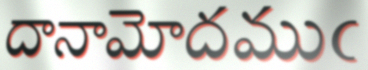
దానామోదముఁ